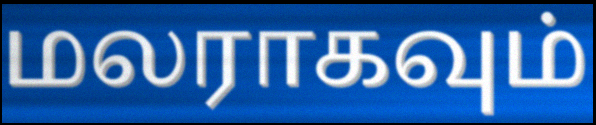
மலராகவும்